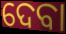
ଦେବା